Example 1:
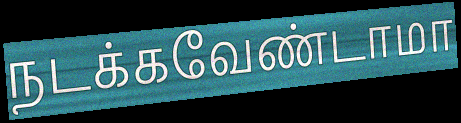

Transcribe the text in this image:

நடக்கவேண்டாமா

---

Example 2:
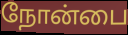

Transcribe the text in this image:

நோன்பை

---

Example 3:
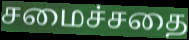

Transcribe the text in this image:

சமைச்சதை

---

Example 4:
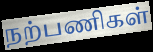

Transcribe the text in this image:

நற்பணிகள்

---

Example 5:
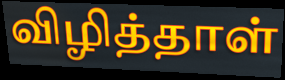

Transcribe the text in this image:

விழித்தாள்